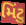
મિંટુ